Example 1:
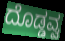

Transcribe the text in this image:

ದೊಡ್ಡವ್ವ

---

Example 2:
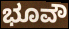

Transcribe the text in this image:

ಭೂವೌ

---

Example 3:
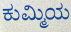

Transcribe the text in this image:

ಕುಮ್ಮಿಯ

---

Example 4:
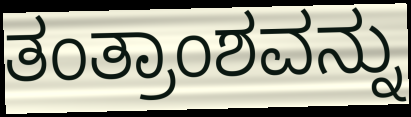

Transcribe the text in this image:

ತಂತ್ರಾಂಶವನ್ನು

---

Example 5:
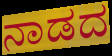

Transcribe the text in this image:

ನಾಡದ